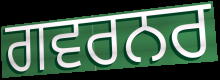
ਗਵਰਨਰ